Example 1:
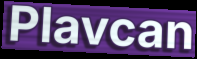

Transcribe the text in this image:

Plavcan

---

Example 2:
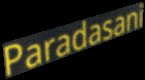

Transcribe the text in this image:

Paradasani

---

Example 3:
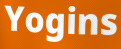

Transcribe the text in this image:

Yogins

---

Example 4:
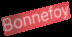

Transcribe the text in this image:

Bonnefoy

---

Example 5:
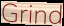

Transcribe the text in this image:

Grind